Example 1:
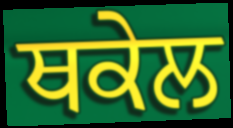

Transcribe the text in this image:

ਥਕੇਲ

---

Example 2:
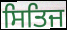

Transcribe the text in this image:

ਸਿਤਿਜ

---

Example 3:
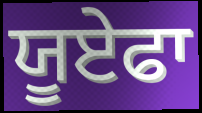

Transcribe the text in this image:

ਯੂਏਫਾ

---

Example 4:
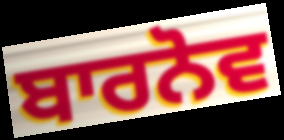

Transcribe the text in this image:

ਬਾਰਨੋਵ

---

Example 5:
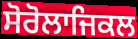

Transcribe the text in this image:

ਸੋਰੋਲਾਜਿਕਲ